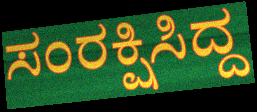
ಸಂರಕ್ಷಿಸಿದ್ದ